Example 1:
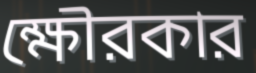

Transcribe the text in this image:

ক্ষৌরকার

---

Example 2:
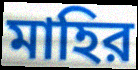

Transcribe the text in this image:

মাহির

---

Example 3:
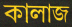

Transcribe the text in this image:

কালাজ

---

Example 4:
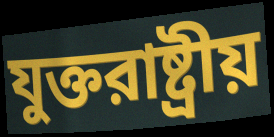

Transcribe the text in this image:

যুক্তরাষ্ট্রীয়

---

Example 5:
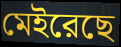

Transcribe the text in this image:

মেইরেছে